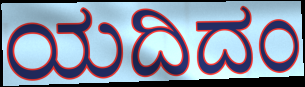
ಯದಿದಂ